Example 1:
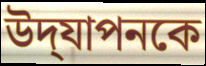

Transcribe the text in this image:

উদ্‌যাপনকে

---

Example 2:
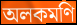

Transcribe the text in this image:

অলকমণি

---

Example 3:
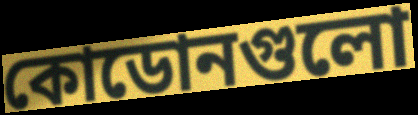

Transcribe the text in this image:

কোডোনগুলো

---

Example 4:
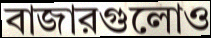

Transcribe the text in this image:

বাজারগুলোও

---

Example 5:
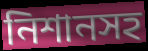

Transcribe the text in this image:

নিশানসহ